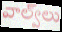
వాల్వ్‌లు